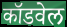
कॉडवेल